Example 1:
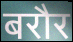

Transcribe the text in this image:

बरौर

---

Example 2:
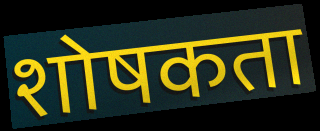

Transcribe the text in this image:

शोषकता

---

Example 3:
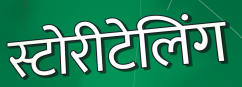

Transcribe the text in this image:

स्टोरीटेलिंग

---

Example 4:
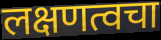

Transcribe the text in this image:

लक्षणत्वचा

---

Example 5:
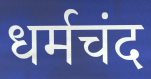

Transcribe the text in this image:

धर्मचंद